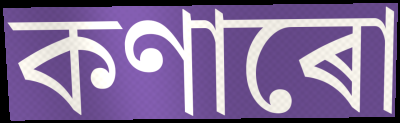
কণাৰো